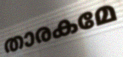
താരകമേ